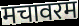
मचावरम